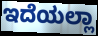
ಇದೆಯಲ್ಲಾ